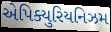
એપિક્યુરિયનિઝમ